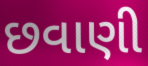
છવાણી